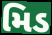
મિડ